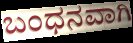
ಬಂಧನವಾಗಿ